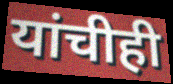
यांचीही